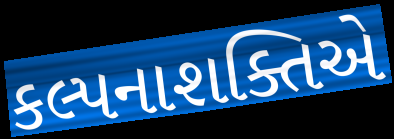
કલ્પનાશક્તિએ